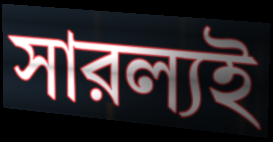
সারল্যই